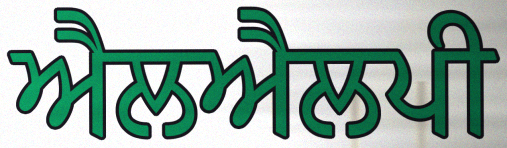
ਐਲਐਲਪੀ